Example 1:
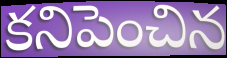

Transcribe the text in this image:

కనిపెంచిన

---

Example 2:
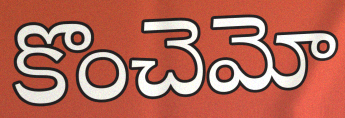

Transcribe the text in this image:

కొంచెమో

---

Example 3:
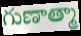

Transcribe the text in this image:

గుణాత్మా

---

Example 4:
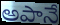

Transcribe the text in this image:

అపానే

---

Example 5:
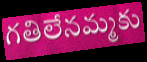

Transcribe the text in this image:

గతిలేనమ్మకు